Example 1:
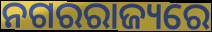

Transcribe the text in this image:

ନଗରରାଜ୍ୟରେ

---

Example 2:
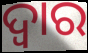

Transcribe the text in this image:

ଦ୍ୱାର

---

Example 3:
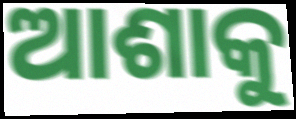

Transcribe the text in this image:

ଆଶାକୁ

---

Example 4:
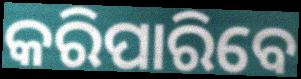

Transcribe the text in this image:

କରିପାରିବେ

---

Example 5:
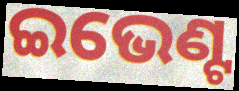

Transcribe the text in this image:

ଇଭେଣ୍ଟ